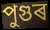
পুগুৰ